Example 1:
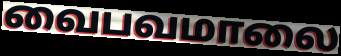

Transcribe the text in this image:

வைபவமாலை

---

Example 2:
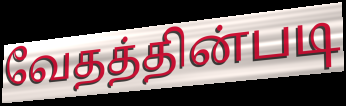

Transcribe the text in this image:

வேதத்தின்படி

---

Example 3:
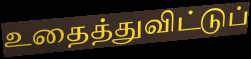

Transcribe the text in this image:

உதைத்துவிட்டுப்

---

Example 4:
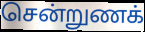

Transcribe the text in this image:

சென்றுணக்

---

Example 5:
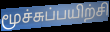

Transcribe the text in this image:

மூச்சுப்பயிற்சி